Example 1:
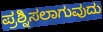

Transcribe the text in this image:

ಪ್ರಶ್ನಿಸಲಾಗುವುದು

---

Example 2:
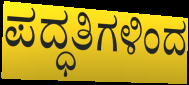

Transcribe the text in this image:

ಪದ್ಧತಿಗಳಿಂದ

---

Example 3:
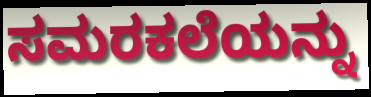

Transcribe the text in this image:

ಸಮರಕಲೆಯನ್ನು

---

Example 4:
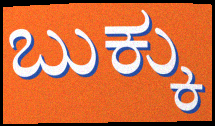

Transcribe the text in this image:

ಬುಕ್ಕು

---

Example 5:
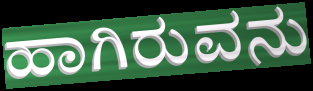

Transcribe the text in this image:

ಹಾಗಿರುವನು